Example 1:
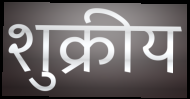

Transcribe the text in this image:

शुक्रीय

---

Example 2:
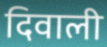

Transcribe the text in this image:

दिवाली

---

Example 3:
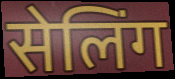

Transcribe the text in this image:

सेलिंग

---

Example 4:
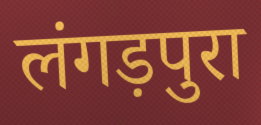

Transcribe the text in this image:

लंगड़पुरा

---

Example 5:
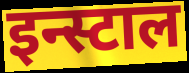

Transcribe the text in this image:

इन्स्टाल